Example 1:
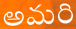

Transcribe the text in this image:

అమరి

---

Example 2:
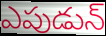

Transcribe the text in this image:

ఎపుడున్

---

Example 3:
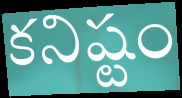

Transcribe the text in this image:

కనిష్టం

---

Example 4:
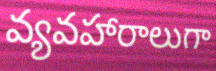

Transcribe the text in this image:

వ్యవహారాలుగా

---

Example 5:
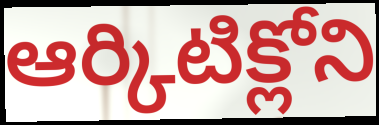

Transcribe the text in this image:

ఆర్కిటిక్లోని